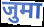
जुमा